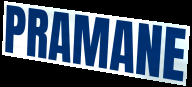
PRAMANE